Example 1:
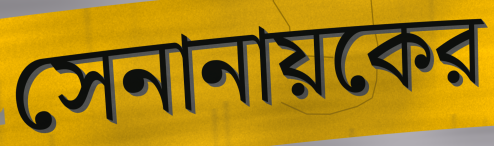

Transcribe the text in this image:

সেনানায়কের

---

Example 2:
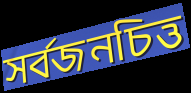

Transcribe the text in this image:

সর্বজনচিত্ত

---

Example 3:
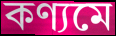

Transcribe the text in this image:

কণ্যমে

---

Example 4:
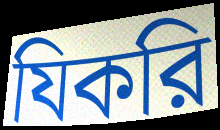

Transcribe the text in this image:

যিকরি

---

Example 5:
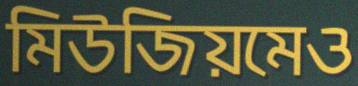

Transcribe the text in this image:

মিউজিয়মেও